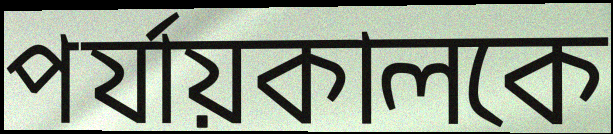
পর্যায়কালকে